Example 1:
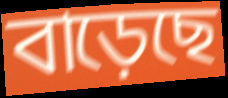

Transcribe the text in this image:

বাড়েছে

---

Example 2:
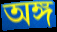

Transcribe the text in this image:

অঙ্গ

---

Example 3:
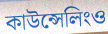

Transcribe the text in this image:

কাউন্সেলিংও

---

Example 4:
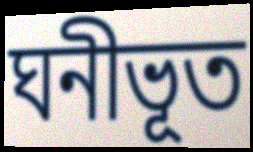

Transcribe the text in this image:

ঘনীভূত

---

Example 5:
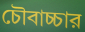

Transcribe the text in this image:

চৌবাচ্চার